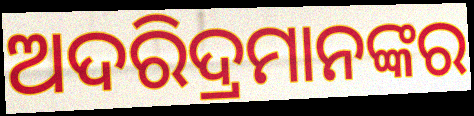
ଅଦରିଦ୍ରମାନଙ୍କର